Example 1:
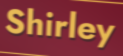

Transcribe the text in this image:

Shirley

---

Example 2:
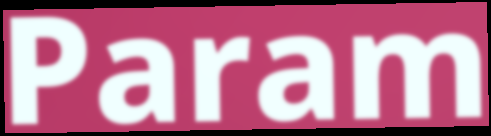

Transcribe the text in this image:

Param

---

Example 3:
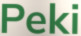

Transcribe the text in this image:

Peki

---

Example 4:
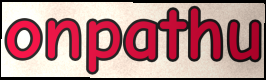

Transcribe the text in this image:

onpathu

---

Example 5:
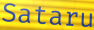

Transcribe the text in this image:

Sataru